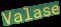
Valase